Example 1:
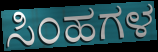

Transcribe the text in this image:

ಸಿಂಹಗಳ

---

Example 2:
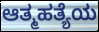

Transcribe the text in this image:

ಆತ್ಮಹತ್ಯೆಯ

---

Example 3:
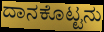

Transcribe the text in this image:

ದಾನಕೊಟ್ಟನು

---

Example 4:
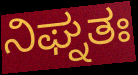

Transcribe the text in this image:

ನಿಘ್ನತಃ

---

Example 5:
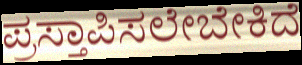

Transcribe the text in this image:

ಪ್ರಸ್ತಾಪಿಸಲೇಬೇಕಿದೆ